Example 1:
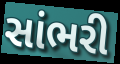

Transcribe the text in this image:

સાંભરી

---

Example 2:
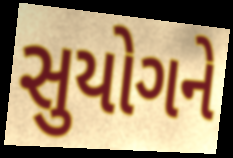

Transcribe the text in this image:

સુયોગને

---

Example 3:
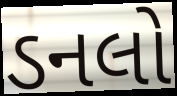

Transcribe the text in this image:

ડનલો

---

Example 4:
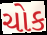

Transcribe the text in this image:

ચોક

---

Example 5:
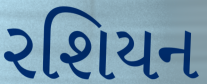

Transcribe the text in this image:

રશિયન